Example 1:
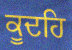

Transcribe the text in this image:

ਕੂਦਹਿ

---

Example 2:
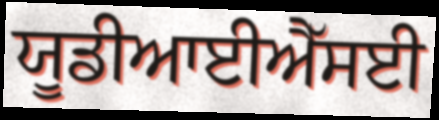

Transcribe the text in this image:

ਯੂਡੀਆਈਐੱਸਈ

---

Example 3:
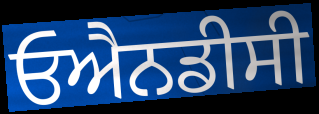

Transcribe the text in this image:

ਓਐਨਡੀਸੀ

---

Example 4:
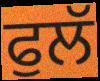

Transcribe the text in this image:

ਫੁਲੱ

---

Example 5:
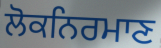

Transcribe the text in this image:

ਲੋਕਨਿਰਮਾਣ